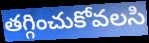
తగ్గించుకోవలసి